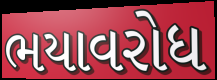
ભયાવરોધ